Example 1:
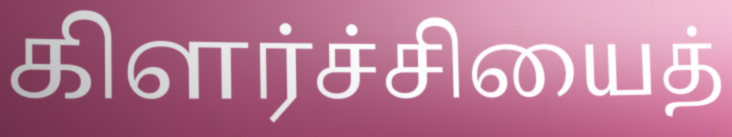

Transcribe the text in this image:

கிளர்ச்சியைத்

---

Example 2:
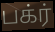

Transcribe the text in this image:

பக்ர்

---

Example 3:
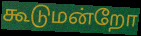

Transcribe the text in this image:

கூடுமன்றோ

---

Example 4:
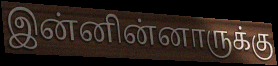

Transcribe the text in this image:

இன்னின்னாருக்கு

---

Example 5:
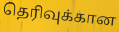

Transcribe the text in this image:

தெரிவுக்கான